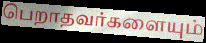
பெறாதவர்களையும்